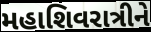
મહાશિવરાત્રીને